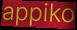
appiko